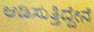
ಆಡಿಸುತ್ತಿದ್ದೇನೆ